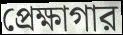
প্রেক্ষাগার